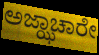
ಅಜ್ಝಾಚಾರೇ